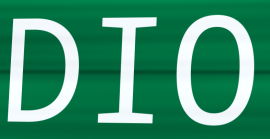
DIO